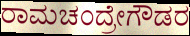
ರಾಮಚಂದ್ರೇಗೌಡರ